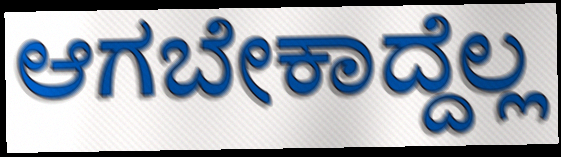
ಆಗಬೇಕಾದ್ದೆಲ್ಲ